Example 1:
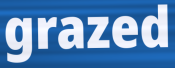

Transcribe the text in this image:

grazed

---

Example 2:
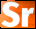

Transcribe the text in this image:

Sr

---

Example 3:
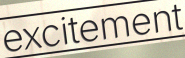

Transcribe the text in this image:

excitement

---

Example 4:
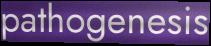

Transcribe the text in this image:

pathogenesis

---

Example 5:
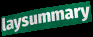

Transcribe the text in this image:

laysummary